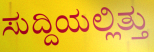
ಸುದ್ದಿಯಲ್ಲಿತ್ತು